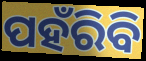
ପହଁରିବି